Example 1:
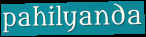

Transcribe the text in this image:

pahilyanda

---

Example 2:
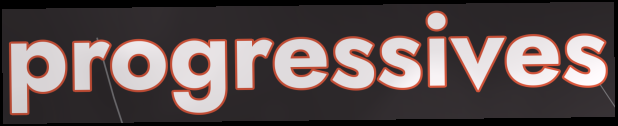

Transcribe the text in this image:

progressives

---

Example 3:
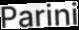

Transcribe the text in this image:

Parini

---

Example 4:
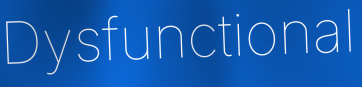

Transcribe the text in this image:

Dysfunctional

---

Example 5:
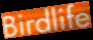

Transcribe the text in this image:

Birdlife